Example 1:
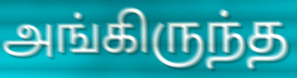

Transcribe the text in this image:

அங்கிருந்த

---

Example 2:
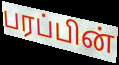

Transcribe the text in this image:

பரப்பின்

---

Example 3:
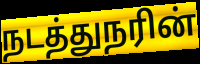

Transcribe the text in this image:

நடத்துநரின்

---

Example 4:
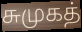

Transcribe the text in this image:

சுமுகத்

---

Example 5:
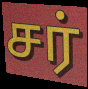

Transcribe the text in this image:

சர்